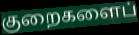
குறைகளைப்